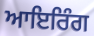
ਆਇਰਿੰਗ